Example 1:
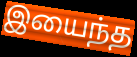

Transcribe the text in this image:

இயைந்த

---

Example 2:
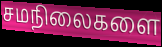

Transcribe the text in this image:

சமநிலைகளை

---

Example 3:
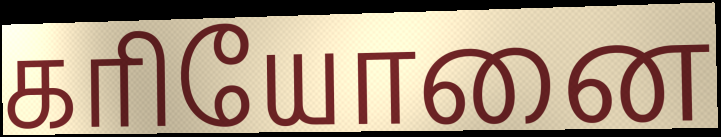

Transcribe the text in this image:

கரியோனை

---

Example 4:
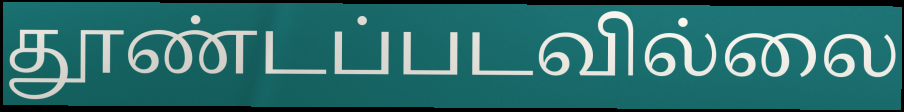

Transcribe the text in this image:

தூண்டப்படவில்லை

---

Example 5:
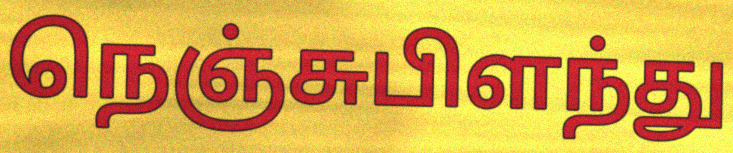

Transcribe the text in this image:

நெஞ்சுபிளந்து